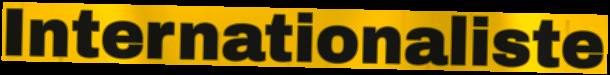
Internationaliste